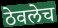
ठेवलेच